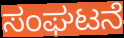
ಸಂಘಟನೆ